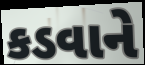
કડવાને